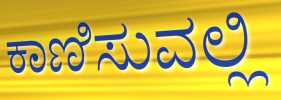
ಕಾಣಿಸುವಲ್ಲಿ